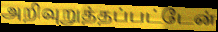
அறிவுறுத்தப்பட்டேன்